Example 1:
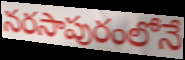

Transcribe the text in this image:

నరసాపురంలోనే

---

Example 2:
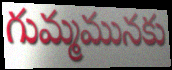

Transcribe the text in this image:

గుమ్మమునకు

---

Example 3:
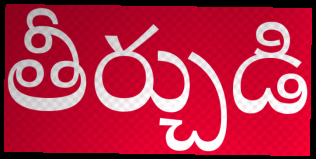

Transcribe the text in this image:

తీర్చుడి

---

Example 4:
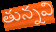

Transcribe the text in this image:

తున్నవి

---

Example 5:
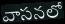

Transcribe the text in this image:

వాసనలో